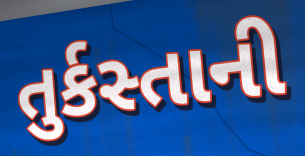
તુર્કસ્તાની